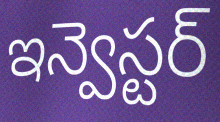
ఇన్వెస్టర్